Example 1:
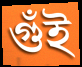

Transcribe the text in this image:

গুঁই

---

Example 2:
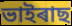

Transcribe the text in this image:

ভাইৰাছ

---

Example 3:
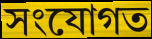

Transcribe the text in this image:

সংযোগত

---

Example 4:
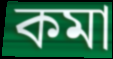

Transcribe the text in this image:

কমা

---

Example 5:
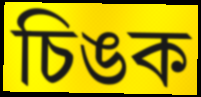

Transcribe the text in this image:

চিঙক